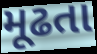
મૂઢતા